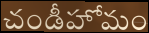
చండీహోమం